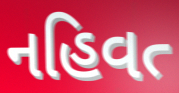
નહિવત્‍